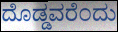
ದೊಡ್ಡವರೆಂದು